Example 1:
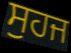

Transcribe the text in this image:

ਸੁਹਜ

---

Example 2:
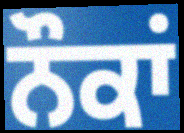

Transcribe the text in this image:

ਨੌਕਾਂ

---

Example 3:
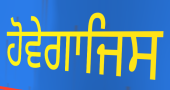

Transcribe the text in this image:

ਹੋਵੇਗਾਜਿਸ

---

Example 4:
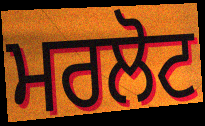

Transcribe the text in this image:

ਮਰਲੋਟ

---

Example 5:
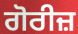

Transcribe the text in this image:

ਗੋਰੀਜ਼